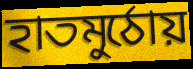
হাতমুঠোয়